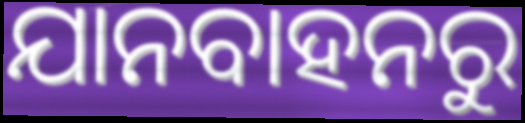
ଯାନବାହନରୁ